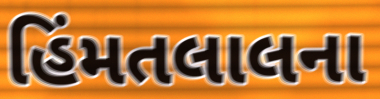
હિંમતલાલના